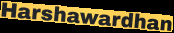
Harshawardhan